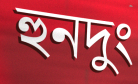
হুনদুং